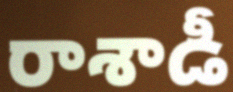
రాశాడీ